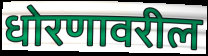
धोरणावरील